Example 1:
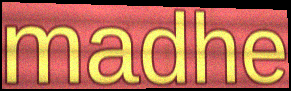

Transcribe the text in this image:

madhe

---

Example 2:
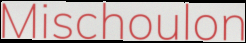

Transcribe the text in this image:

Mischoulon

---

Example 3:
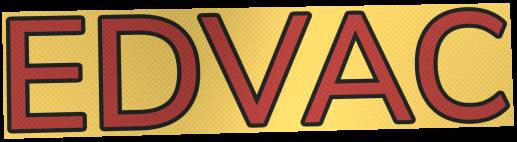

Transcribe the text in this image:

EDVAC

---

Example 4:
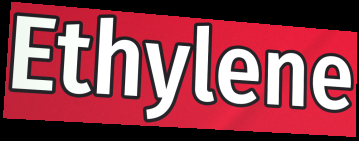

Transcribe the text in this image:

Ethylene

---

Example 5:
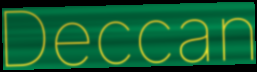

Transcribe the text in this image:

Deccan